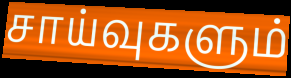
சாய்வுகளும்